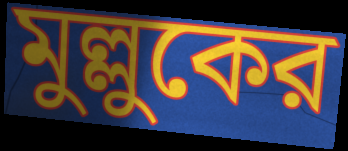
মুল্লুকের